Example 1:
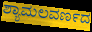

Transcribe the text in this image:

ಶ್ಯಾಮಲವರ್ಣದ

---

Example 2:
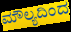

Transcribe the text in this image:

ಮೌಲ್ಯದಿಂದ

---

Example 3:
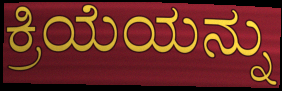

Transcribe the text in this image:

ಕ್ರಿಯೆಯನ್ನು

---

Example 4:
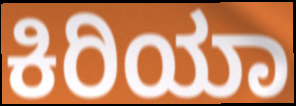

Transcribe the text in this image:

ಕಿರಿಯಾ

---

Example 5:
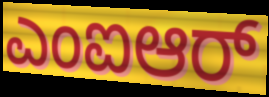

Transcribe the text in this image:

ಎಂಐಆರ್